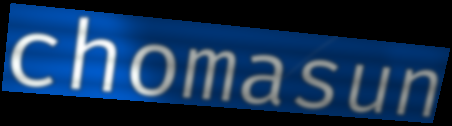
chomasun